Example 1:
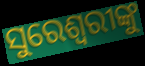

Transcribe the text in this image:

ସୁରେଶ୍ୱରୀଙ୍କୁ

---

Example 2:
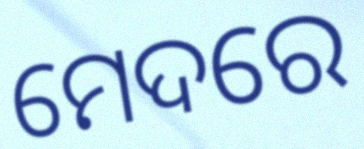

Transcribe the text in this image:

ମେଦରେ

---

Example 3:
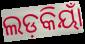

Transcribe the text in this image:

ଲଡ଼କିୟାଁ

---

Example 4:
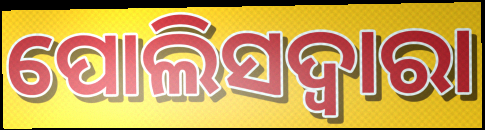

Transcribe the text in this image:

ପୋଲିସଦ୍ୱାରା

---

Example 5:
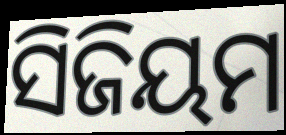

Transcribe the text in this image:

ସିଜିୟମ